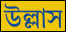
উল্লাস